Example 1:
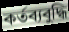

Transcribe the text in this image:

কর্তব্যবুদ্ধি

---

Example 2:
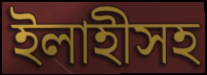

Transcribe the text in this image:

ইলাহীসহ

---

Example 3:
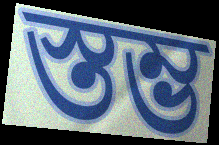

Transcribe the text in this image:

স্তম্ভ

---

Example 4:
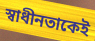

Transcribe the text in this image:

স্বাধীনতাকেই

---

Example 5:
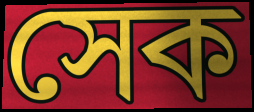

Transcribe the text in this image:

সেক